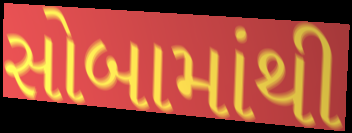
સોબામાંથી